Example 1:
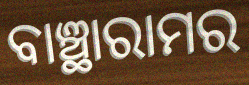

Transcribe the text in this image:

ବାଞ୍ଛାରାମର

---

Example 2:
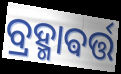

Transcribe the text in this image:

ବ୍ରହ୍ମାଵର୍ତ୍ତ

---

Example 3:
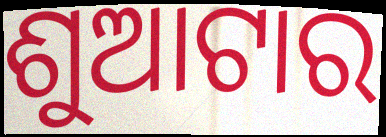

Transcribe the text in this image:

ଶୁଆଟାର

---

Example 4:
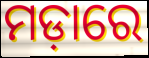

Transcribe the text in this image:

ମଡ଼ାରେ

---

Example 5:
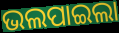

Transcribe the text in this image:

ଭଲପାଇଲା